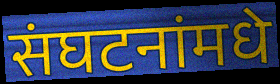
संघटनांमधे